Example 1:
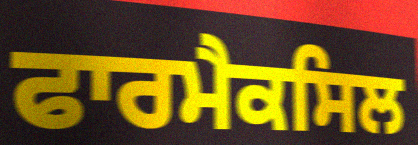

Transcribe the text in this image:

ਫਾਰਮੈਕਸਿਲ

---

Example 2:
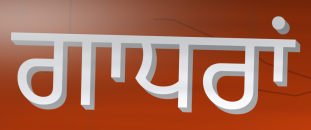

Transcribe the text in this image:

ਗਾਧਰਾਂ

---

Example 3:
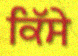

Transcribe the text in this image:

ਕਿੱਸੇ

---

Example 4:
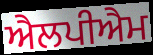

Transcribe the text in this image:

ਐਲਪੀਐਮ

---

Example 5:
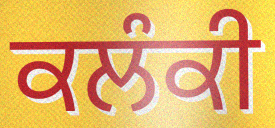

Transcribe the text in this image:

ਕਲੰਕੀ